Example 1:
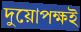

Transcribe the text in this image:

দুয়োপক্ষই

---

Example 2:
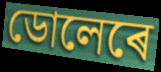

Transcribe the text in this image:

ডোলেৰে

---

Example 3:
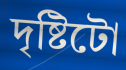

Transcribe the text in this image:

দৃষ্টিটো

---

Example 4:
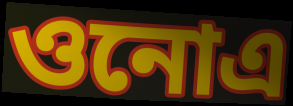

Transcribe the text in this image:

ওনোএ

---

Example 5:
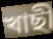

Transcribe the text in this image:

খাছী